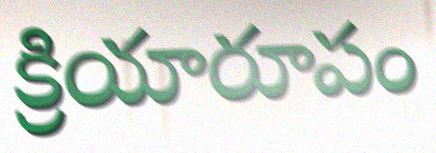
క్రియారూపం